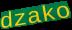
dzako